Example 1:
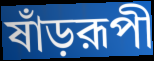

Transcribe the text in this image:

ষাঁড়রূপী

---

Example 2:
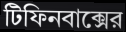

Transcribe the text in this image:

টিফিনবাক্সের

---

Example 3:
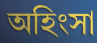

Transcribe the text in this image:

অহিংসা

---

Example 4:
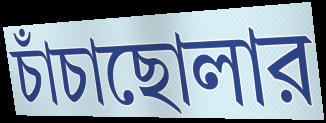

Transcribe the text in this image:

চাঁচাছোলার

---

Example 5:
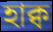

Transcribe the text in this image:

হাক্ব